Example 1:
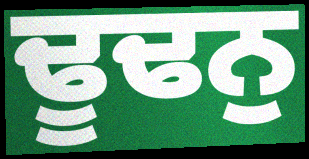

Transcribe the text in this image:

ਢੂਢਨੁ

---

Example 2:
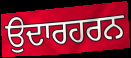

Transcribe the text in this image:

ਉਦਾਰਹਰਨ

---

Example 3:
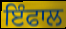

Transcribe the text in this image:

ਇੰਫਾਲ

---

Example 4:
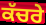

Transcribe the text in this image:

ਕੱਚਰੇ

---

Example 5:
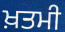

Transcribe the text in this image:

ਖ਼ਤਮੀ